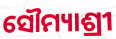
ସୌମ୍ୟାଶ୍ରୀ